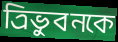
ত্রিভুবনকে